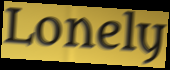
Lonely